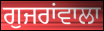
ਗੁਜਰਾਂਵਾਲਾ